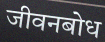
जीवनबोध